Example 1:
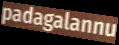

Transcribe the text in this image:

padagalannu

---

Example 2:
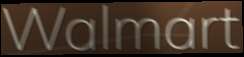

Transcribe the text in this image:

Walmart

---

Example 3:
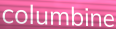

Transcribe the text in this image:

columbine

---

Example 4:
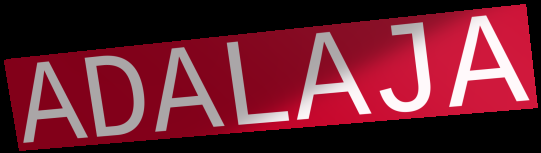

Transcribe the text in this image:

ADALAJA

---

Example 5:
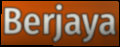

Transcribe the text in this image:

Berjaya